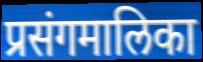
प्रसंगमालिका